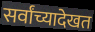
सर्वांच्यादेखत